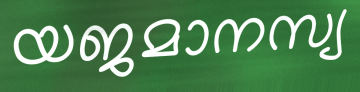
യജമാനസ്യ